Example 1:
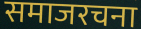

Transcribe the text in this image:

समाजरचना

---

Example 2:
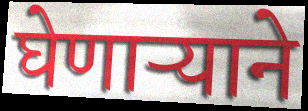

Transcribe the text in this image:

घेणाऱ्याने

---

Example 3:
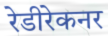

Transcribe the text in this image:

रेडीरेकनर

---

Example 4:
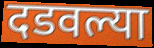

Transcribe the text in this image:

दडवल्या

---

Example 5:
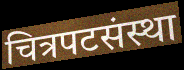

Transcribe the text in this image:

चित्रपटसंस्था